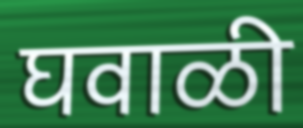
घवाळी